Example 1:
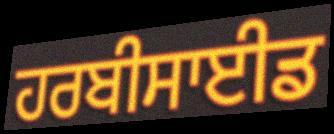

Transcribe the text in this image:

ਹਰਬੀਸਾਈਡ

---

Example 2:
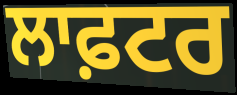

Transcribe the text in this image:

ਲਾਫ਼ਟਰ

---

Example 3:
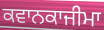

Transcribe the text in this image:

ਕਵਾਨਕਾਜੀਮਾ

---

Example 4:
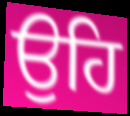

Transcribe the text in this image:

ਉਹਿ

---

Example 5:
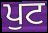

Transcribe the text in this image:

ਪੁਟ